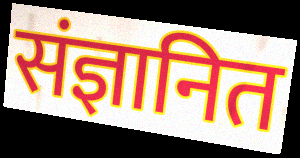
संज्ञानित